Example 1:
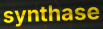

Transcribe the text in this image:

synthase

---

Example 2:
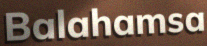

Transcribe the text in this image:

Balahamsa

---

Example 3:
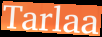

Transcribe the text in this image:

Tarlaa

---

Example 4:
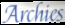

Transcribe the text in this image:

Archies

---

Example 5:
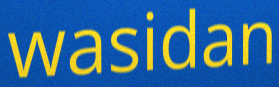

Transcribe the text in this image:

wasidan